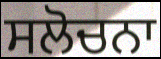
ਸਲੋਚਨਾ